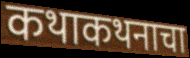
कथाकथनाचा